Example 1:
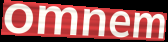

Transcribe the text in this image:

omnem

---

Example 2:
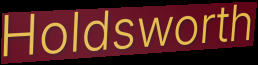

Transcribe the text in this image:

Holdsworth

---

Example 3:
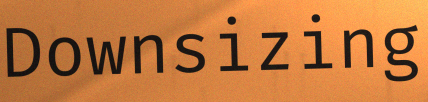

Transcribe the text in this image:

Downsizing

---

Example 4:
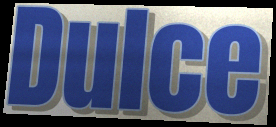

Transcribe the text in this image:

Dulce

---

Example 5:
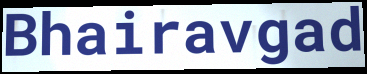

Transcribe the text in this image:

Bhairavgad